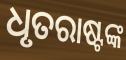
ଧୃତରାଷ୍ଟଙ୍କ